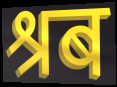
श्रब